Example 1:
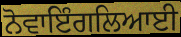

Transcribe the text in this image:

ਨੋਵਾਇੰਗਲਿਆਈ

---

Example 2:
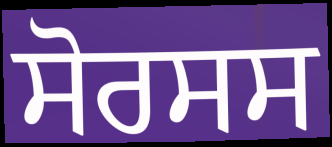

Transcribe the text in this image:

ਸੋਰਸਸ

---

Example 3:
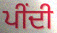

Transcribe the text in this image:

ਪੀਂਦੀ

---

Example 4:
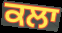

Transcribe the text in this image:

ਕਲਾ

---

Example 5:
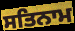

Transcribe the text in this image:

ਸਤਿਨਾਮ